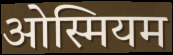
ओस्मियम